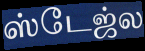
ஸ்டேஜ்ல